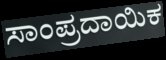
ಸಾಂಪ್ರದಾಯಿಕ